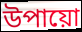
উপায়ো